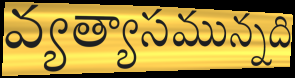
వ్యత్యాసమున్నది